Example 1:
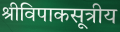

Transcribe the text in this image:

श्रीविपाकसूत्रीय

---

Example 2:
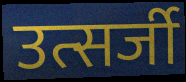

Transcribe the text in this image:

उत्सर्जी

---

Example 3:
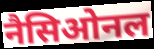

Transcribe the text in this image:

नैसिओनल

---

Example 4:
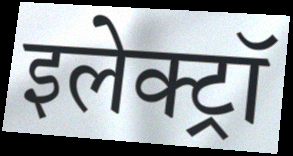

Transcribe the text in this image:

इलेक्ट्रॉ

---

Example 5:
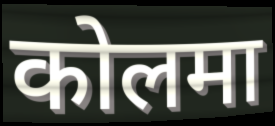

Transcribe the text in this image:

कोलमा